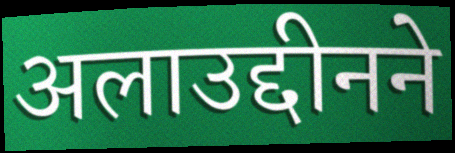
अलाउद्दीनने